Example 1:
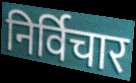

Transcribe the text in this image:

निर्विचार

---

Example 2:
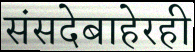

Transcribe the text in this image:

संसदेबाहेरही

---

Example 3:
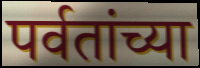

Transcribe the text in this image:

पर्वतांच्या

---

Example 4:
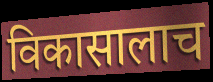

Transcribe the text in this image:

विकासालाच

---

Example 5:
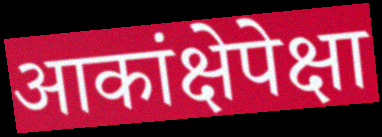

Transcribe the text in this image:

आकांक्षेपेक्षा